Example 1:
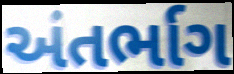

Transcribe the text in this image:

અંતર્ભાગ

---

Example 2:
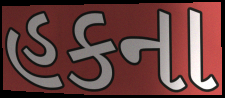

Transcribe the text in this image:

હકના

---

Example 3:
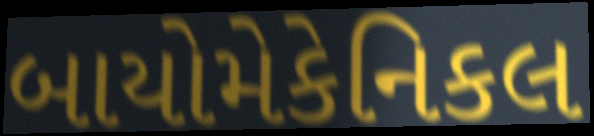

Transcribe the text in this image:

બાયોમેકેનિકલ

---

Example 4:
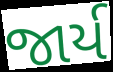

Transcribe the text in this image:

જાર્ય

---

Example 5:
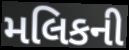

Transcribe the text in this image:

મલિકની